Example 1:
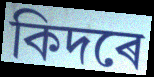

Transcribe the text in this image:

কিদৰে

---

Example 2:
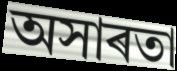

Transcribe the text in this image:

অসাৰতা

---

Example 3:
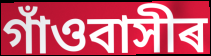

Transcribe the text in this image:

গাঁওবাসীৰ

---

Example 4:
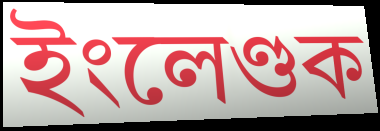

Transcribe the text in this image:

ইংলেণ্ডক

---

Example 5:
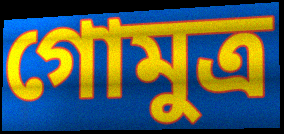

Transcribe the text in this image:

গোমুত্ৰ